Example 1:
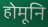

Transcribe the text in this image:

होमूनि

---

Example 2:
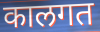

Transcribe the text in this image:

कालगत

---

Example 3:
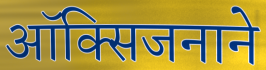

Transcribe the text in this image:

ऑक्सिजनाने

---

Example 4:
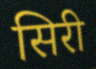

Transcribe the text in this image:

सिरी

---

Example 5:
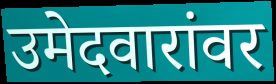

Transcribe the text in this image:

उमेदवारांवर